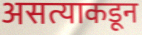
असत्याकडून